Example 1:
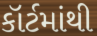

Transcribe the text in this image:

કૉર્ટમાંથી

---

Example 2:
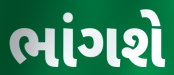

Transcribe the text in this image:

ભાંગશે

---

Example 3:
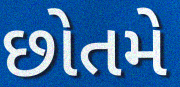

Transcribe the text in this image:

છોતમે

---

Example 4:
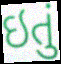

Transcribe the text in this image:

ઇતું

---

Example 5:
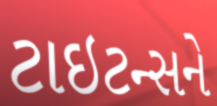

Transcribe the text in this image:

ટાઇટન્સને